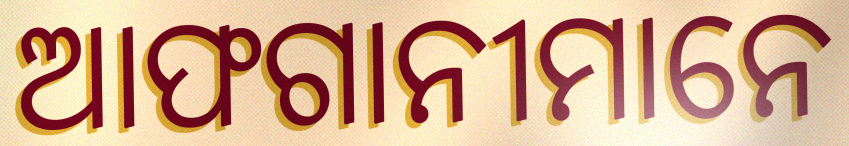
ଆଫଗାନୀମାନେ